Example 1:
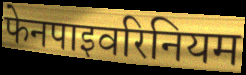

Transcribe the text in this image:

फेनपाइवरिनियम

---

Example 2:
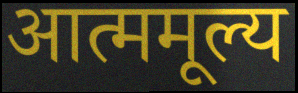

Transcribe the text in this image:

आत्ममूल्य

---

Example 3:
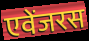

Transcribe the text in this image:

एवेंजरस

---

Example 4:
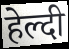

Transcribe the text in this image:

हेल्दी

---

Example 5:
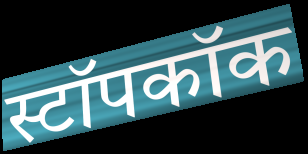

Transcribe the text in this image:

स्टॉपकॉक